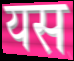
यस